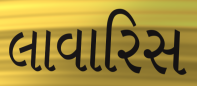
લાવારિસ